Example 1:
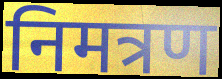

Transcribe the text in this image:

निमत्रण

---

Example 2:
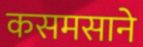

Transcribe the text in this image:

कसमसाने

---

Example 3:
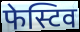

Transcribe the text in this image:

फेस्टिव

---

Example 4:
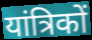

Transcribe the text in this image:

यांत्रिकों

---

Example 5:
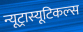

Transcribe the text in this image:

न्यूट्रास्यूटिकल्स